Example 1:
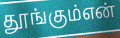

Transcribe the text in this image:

தூங்கும்என்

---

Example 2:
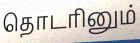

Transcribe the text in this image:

தொடரினும்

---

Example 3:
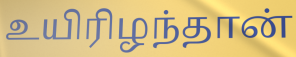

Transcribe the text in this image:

உயிரிழந்தான்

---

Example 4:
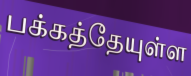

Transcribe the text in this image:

பக்கத்தேயுள்ள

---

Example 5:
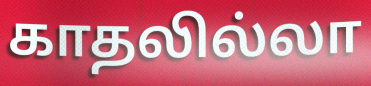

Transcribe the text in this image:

காதலில்லா